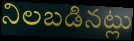
నిలబడినట్లు